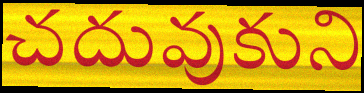
చదువుకుని